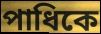
পাধিকে